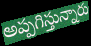
అప్పగిస్తున్నారు